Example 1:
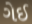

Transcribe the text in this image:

ગેઈ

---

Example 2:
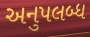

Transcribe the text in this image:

અનુપલબ્ધ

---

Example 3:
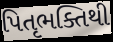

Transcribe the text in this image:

પિતૃભક્તિથી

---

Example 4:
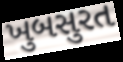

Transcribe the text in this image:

ખુબસુરત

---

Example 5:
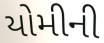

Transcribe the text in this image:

યોમીની